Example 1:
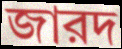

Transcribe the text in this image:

জারদ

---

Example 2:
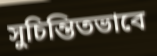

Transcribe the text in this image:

সুচিন্তিতভাবে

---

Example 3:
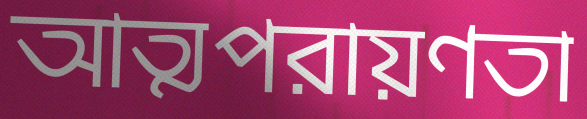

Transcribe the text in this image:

আত্মপরায়ণতা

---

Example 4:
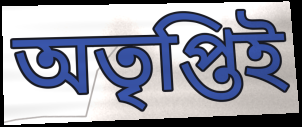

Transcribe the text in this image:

অতৃপ্তিই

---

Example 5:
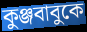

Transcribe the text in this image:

কুঞ্জবাবুকে